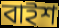
বাইশ